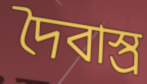
দৈবাস্ত্র